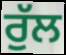
ਰੁੱਲ